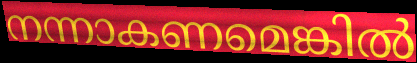
നന്നാകണമെങ്കിൽ